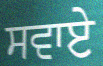
ਸਵਾਏ